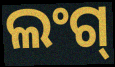
ଲଂଗ୍